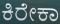
ಕಿರೇಕಾ